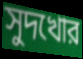
সুদখোর